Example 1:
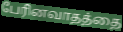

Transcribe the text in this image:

பேரினவாதத்தை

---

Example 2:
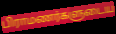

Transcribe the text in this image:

பிராமணர்களுடைய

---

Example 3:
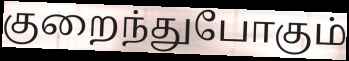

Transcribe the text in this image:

குறைந்துபோகும்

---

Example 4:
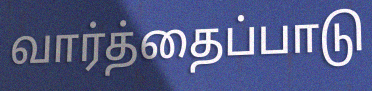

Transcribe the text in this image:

வார்த்தைப்பாடு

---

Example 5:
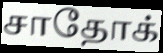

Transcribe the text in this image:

சாதோக்